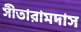
সীতারামদাস